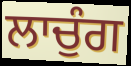
ਲਾਚੁੰਗ